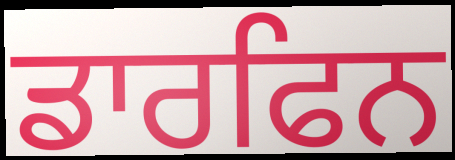
ਡਾਰਫਿਨ